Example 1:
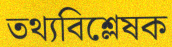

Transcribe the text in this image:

তথ্যবিশ্লেষক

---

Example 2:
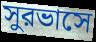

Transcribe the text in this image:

সুরভাসে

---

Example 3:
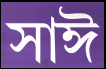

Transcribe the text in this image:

সাঈ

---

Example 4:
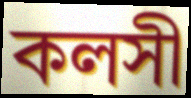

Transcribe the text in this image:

কলসী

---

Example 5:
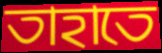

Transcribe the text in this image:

তাহাতে